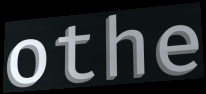
othe